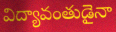
విద్యావంతుడైనా